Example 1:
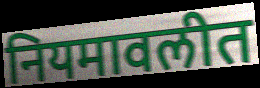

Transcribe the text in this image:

नियमावलीत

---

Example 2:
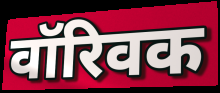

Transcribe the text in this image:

वॉरिवक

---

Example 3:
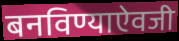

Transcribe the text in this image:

बनविण्याऐवजी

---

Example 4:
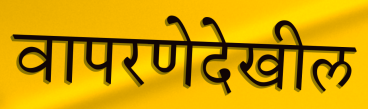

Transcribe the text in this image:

वापरणेदेखील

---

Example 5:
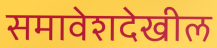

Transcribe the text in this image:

समावेशदेखील